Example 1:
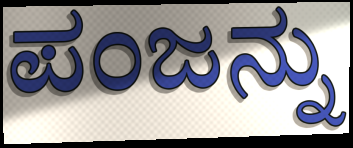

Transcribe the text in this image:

ಪಂಜನ್ನು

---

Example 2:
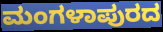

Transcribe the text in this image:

ಮಂಗಳಾಪುರದ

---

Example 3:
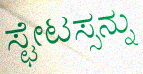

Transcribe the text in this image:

ಸ್ಟೇಟಸ್ಸನ್ನು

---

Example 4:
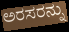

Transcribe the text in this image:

ಅರಸರನ್ನು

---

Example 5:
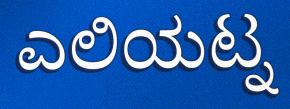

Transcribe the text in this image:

ಎಲಿಯಟ್ನ